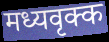
मध्यवृक्क